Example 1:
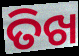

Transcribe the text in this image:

ତିଖ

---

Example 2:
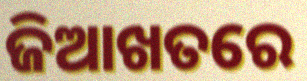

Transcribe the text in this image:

ଜିଆଖତରେ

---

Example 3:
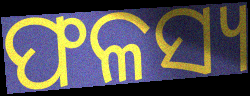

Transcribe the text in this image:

ଫଳସ୍ୟ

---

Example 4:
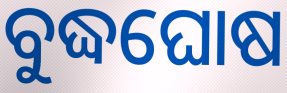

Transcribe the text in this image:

ବୁଦ୍ଧଘୋଷ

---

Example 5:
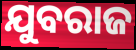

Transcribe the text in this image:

ଯୁବରାଜ